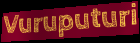
Vuruputuri